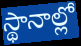
స్థానాల్లో